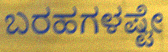
ಬರಹಗಳಷ್ಟೇ